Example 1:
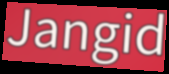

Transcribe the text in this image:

Jangid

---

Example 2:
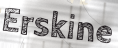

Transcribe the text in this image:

Erskine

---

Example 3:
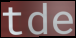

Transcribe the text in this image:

tde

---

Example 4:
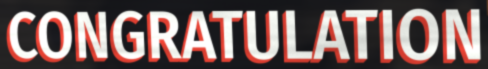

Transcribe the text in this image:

CONGRATULATION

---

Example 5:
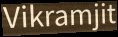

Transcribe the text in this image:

Vikramjit